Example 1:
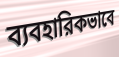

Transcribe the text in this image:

ব্যবহারিকভাবে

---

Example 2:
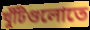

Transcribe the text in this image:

খুঁটিগুলোতে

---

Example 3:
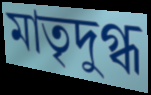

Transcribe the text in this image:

মাতৃদুগ্ধ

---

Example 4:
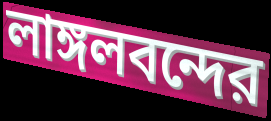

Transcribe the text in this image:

লাঙ্গলবন্দের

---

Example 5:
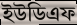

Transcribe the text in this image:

ইউডিএফ